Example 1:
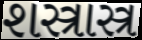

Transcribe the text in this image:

શસ્ત્રાસ્ત્ર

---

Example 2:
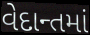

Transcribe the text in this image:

વેદાન્તમાં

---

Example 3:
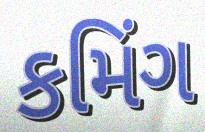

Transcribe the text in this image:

કમિંગ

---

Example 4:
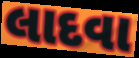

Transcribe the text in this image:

લાદવા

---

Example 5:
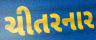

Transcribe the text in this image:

ચીતરનાર